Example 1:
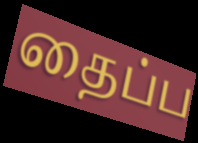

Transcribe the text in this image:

தைப்ப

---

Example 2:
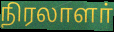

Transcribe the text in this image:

நிரலாளர்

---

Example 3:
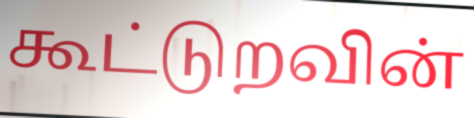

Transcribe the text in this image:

கூட்டுறவின்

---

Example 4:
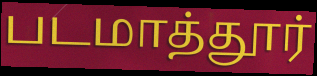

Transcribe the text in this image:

படமாத்தூர்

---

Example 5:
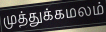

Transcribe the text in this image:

முத்துக்கமலம்